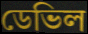
ডেভিল